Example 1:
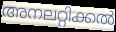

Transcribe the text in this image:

അനലറ്റിക്കൽ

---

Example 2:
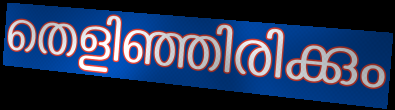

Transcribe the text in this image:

തെളിഞ്ഞിരിക്കും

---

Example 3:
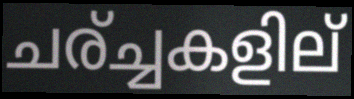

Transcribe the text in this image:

ചര്ച്ചകളില്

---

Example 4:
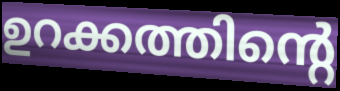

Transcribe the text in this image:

ഉറക്കത്തിന്റെ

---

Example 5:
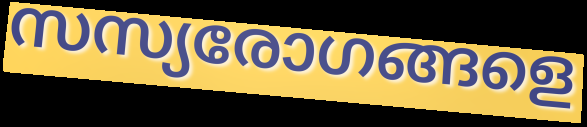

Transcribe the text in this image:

സസ്യരോഗങ്ങളെ